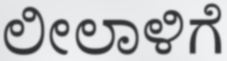
ಲೀಲಾಳಿಗೆ